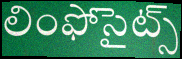
లింఫోసైట్స్